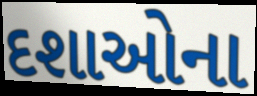
દશાઓના